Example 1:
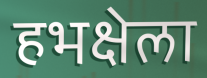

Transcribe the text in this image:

हभक्षेला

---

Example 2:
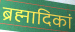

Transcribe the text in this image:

ब्रह्मादिकां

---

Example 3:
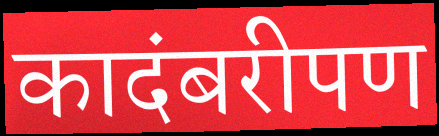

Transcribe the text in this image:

कादंबरीपण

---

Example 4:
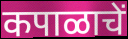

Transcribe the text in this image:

कपाळाचें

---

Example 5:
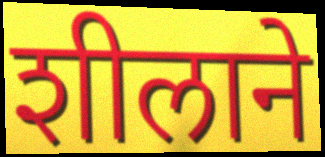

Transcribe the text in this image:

शीलाने